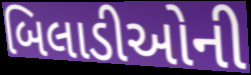
બિલાડીઓની